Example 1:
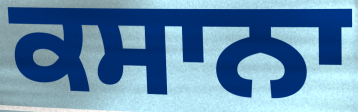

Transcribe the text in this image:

ਕਸਾਨਾ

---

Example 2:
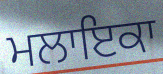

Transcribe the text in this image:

ਮਲਾਇਕਾ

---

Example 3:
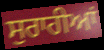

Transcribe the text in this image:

ਸੁਰਾਹੀਆਂ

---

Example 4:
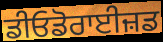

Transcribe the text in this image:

ਡੀਓਡੋਰਾਈਜ਼ਡ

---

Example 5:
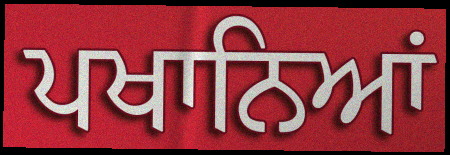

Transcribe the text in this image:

ਪਖਾਨਿਆਂ